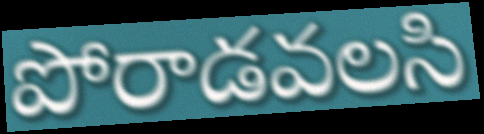
పోరాడవలసి